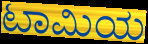
ಟಾಮಿಯ